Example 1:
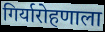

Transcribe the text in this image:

गिर्यारोहणाला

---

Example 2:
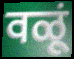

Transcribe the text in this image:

वळूं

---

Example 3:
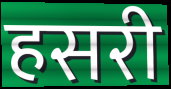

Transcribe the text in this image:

हसरी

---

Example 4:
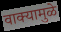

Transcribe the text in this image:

वाक्यामुळे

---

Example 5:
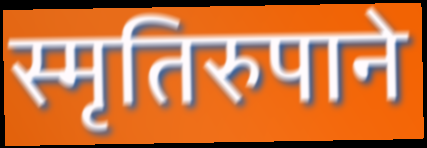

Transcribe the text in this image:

स्मृतिरुपाने